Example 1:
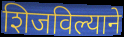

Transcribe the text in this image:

शिजविल्याने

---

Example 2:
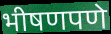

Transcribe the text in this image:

भीषणपणे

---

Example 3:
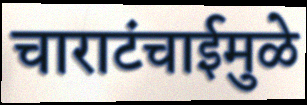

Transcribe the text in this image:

चाराटंचाईमुळे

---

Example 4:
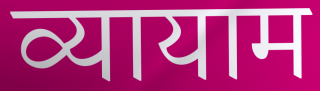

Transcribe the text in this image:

व्यायाम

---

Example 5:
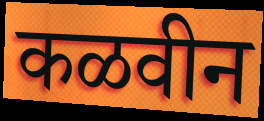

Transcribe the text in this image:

कळवीन